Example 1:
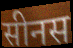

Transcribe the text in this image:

सीनस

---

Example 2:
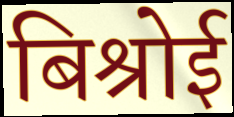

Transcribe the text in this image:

बिश्रोई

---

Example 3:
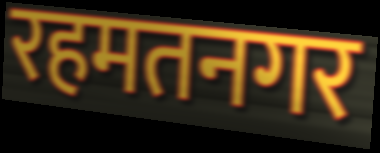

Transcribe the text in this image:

रहमतनगर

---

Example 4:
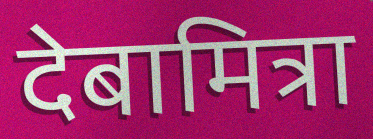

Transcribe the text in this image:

देबामित्रा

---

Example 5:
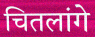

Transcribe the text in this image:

चितलांगे